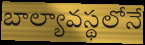
బాల్యావస్థలోనే